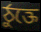
ঠুক্তে